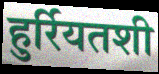
हुर्रियतशी